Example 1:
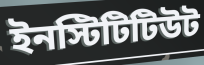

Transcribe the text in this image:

ইনস্টিটিটিউট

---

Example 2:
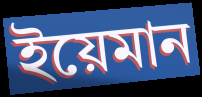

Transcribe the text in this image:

ইয়েমান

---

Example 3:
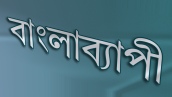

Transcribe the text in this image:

বাংলাব্যাপী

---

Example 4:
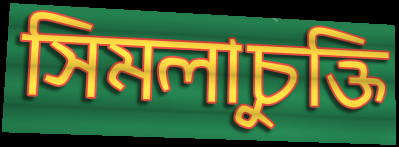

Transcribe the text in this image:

সিমলাচুক্তি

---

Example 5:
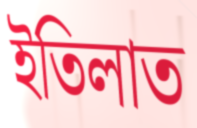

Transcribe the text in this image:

ইতিলাত